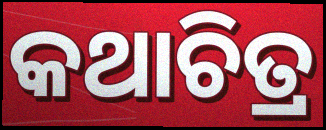
କଥାଚିତ୍ର